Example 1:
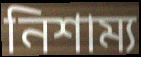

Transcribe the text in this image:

নিশাম্য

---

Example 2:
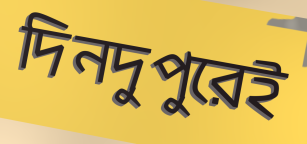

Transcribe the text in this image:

দিনদুপুরেই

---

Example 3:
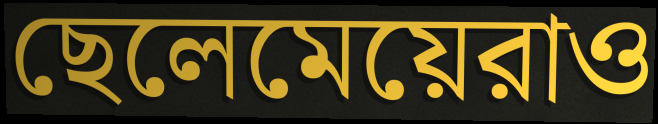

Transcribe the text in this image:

ছেলেমেয়েরাও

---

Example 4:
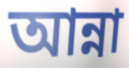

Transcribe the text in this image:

আন্না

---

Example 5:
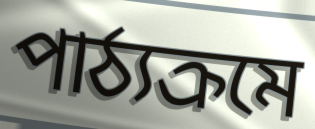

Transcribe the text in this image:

পাঠ্যক্রমে